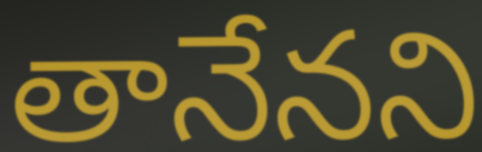
తానేనని